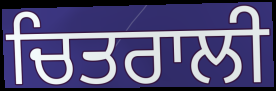
ਚਿਤਰਾਲੀ